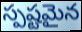
స్పష్టమైన